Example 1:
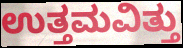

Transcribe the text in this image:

ಉತ್ತಮವಿತ್ತು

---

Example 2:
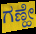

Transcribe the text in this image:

ಗಣ್ಹೇ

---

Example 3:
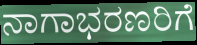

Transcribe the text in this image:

ನಾಗಾಭರಣರಿಗೆ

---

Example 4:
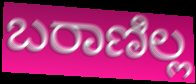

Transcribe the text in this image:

ಬರಾಣಿಲ್ಲ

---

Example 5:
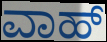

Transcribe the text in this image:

ವಾಹ್